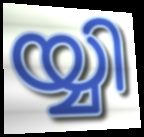
യ്യി